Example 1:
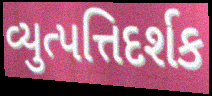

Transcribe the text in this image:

વ્યુત્પત્તિદર્શક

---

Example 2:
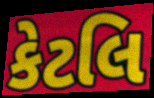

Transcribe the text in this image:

કેટલિ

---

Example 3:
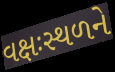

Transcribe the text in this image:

વક્ષઃસ્થળને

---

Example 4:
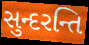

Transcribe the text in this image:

સુન્દરન્તિ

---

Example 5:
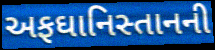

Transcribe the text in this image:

અફઘાનિસ્તાનની